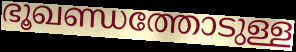
ഭൂഖണ്ഡത്തോടുള്ള